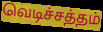
வெடிச்சத்தம்